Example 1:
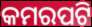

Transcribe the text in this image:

କମରପଟି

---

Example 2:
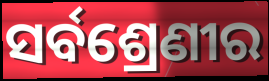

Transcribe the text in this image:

ସର୍ବଶ୍ରେଣୀର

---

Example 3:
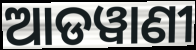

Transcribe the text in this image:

ଆଡୱାଣୀ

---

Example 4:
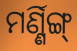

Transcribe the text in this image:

ମର୍ଣ୍ଣିଙ୍ଗ୍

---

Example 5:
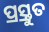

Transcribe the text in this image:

ପ୍ର୍ରସ୍ତୁତ